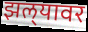
झल्यावर